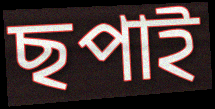
ছপাই